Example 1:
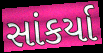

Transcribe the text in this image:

સાંકર્યા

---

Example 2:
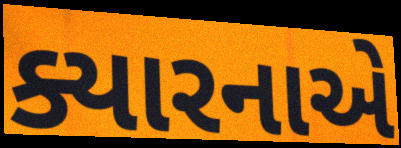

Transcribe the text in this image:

ક્યારનાએ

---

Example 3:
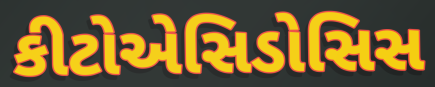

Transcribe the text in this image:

કીટોએસિડોસિસ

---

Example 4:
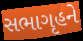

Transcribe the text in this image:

સભાગૃહને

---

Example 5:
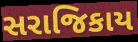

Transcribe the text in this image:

સરાજિકાય